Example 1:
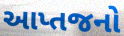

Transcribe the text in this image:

આપ્તજનો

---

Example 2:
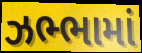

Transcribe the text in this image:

ઝભ્ભામાં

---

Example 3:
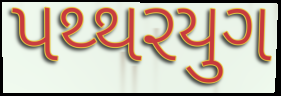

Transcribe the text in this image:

પથ્થરયુગ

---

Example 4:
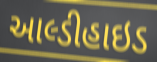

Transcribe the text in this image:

આલ્ડીહાઇડ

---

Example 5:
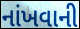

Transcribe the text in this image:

નાંખવાની